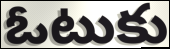
ఓటుకు